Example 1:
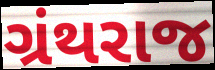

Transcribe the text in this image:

ગ્રંથરાજ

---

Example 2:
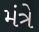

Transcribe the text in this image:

મંત્રે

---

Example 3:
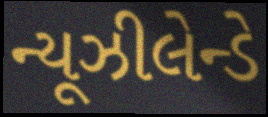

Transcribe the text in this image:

ન્યૂઝીલેન્ડે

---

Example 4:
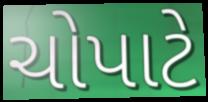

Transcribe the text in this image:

ચોપાટે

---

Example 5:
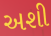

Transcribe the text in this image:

અશી